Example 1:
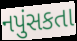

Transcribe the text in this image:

નપુંસકતા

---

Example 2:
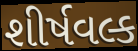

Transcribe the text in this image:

શીર્ષવલ્ક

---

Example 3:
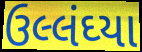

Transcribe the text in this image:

ઉલ્લંઘ્યા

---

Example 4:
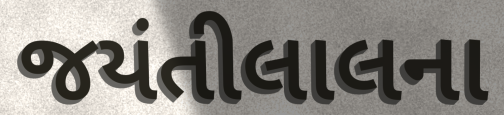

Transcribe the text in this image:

જયંતીલાલના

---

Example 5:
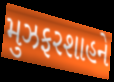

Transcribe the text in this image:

મુઝફરશાહને